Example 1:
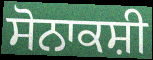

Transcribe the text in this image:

ਸੋਨਾਕਸ਼ੀ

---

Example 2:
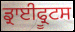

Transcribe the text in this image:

ਡ੍ਰਾਈਫ੍ਰੂਟਸ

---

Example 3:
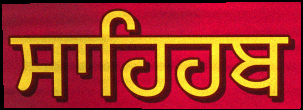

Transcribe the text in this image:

ਸਾਹਿਹਬ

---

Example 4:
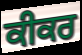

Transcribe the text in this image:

ਕੀਕਰ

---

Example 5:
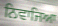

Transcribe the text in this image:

ਨਿਵਾਜਿਆ